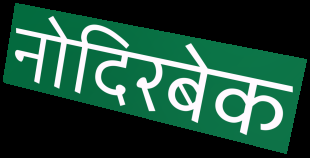
नोदिरबेक